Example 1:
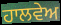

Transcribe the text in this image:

ਹਾਲਵੇਅ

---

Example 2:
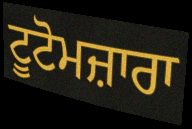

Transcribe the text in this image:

ਟੂਟੋਮਜ਼ਾਰਾ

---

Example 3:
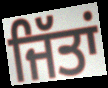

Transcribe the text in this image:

ਜਿੱਤਾਂ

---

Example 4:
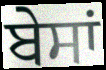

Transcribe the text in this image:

ਬੇਸਾਂ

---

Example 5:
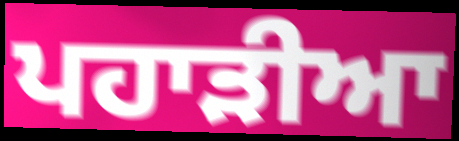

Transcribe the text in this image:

ਪਹਾੜੀਆ